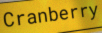
Cranberry